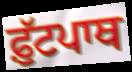
ਫ਼ੁੱਟਪਾਥ